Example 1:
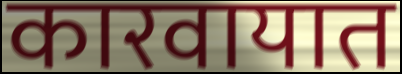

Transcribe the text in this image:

कारवायात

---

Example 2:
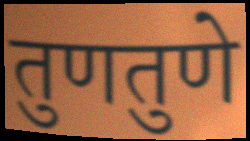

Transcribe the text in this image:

तुणतुणे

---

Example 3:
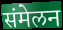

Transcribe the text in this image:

संमेलन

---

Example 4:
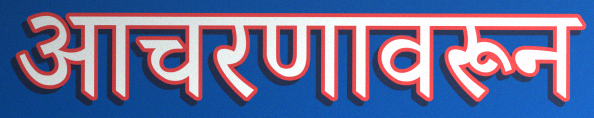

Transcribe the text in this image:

आचरणावरून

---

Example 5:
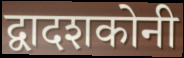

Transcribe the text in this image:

द्वादशकोनी